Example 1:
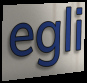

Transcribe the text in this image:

egli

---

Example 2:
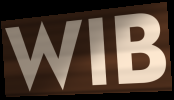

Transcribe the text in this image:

WIB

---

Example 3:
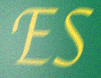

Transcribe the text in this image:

ES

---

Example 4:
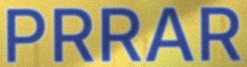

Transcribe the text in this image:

PRRAR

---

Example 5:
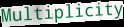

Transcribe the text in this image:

Multiplicity